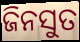
ଜିନସୁତ